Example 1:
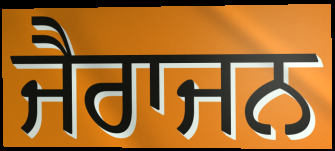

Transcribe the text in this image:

ਜੈਰਾਜਨ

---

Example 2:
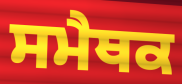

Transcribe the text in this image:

ਸਮੈਥਕ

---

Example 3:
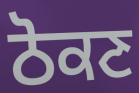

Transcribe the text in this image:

ਠੋਕਣ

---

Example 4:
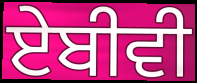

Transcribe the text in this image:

ਏਬੀਵੀ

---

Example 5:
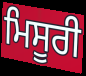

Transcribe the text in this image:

ਮਿਸੂਰੀ